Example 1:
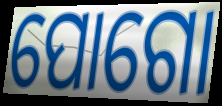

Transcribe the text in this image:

ପୋଗୋ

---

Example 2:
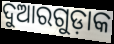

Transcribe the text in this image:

ଦୁଆରଗୁଡ଼ାକ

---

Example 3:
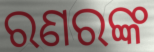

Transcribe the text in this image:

ରଣରଙ୍କ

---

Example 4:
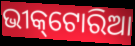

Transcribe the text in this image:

ଭୀକ୍‌ଟୋରିଆ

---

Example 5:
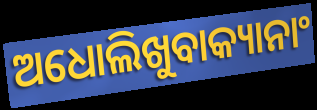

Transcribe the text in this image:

ଅଧୋଲିଖୁବାକ୍ୟାନାଂ